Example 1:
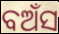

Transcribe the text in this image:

ବଅଁସ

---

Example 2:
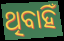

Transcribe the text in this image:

ଥିବାହିଁ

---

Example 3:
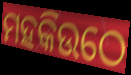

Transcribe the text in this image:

ମହକିଉଠେ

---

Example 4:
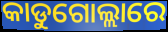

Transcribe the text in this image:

କାଡୁଗୋଲ୍ଲାରେ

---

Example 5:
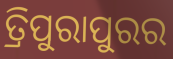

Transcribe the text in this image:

ତ୍ରିପୁରାପୁରର